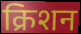
क्रिशन